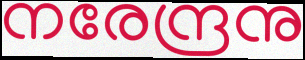
നരേന്ദ്രനു